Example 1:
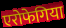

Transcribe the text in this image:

एरोफेगिया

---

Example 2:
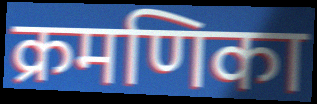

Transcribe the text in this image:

क्रमणिका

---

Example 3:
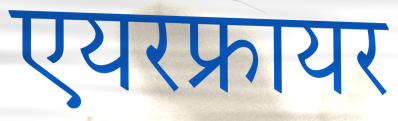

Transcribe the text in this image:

एयरफ्रायर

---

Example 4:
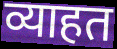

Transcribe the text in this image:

व्याहत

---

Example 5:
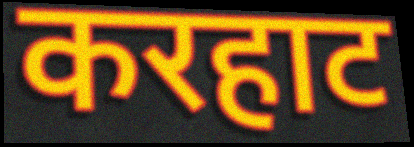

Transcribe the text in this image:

करहाट